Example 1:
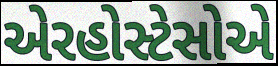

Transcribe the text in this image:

એરહોસ્ટેસોએ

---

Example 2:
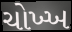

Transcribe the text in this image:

ચોખ્ખ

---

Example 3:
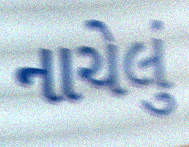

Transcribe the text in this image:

નાચેલું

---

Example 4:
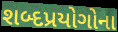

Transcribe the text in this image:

શબ્દપ્રયોગોના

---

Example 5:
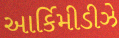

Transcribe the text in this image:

આર્કિમીડીઝે